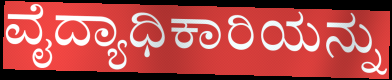
ವೈದ್ಯಾಧಿಕಾರಿಯನ್ನು